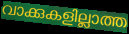
വാക്കുകളില്ലാത്ത